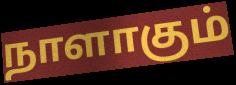
நாளாகும்